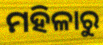
ମହିଳାରୁ